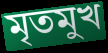
মৃতমুখ